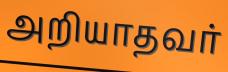
அறியாதவர்